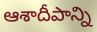
ఆశాదీపాన్ని